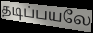
தடிப்பயலே